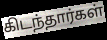
கிடந்தார்கள்